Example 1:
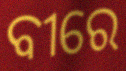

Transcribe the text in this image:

ବୀରେ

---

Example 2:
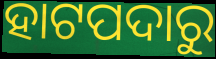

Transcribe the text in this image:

ହାଟପଦାରୁ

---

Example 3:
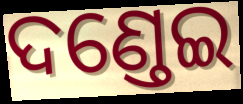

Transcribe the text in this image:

ଦଣ୍ଡେଇ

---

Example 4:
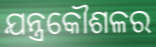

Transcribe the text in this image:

ଯନ୍ତ୍ରକୌଶଳର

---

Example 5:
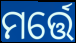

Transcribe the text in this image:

ମର୍ତ୍ତେ